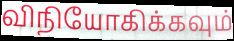
விநியோகிக்கவும்